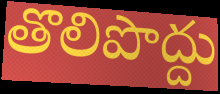
తొలిపొద్దు